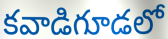
కవాడిగూడలో